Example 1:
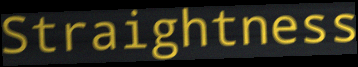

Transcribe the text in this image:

Straightness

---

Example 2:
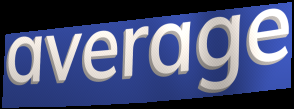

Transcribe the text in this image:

average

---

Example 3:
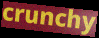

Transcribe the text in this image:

crunchy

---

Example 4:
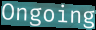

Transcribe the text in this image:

Ongoing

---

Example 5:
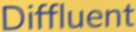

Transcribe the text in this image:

Diffluent